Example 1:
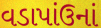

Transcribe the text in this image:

વડાપાંઉનાં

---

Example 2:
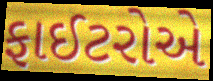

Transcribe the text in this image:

ફાઈટરોએ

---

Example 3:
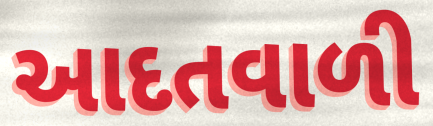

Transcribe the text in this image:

આદતવાળી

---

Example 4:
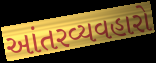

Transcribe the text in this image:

આંતરવ્યવહારો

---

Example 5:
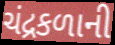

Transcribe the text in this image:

ચંદ્રકળાની